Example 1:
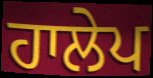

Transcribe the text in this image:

ਹਾਲੇਪ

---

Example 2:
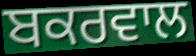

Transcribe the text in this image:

ਬਕਰਵਾਲ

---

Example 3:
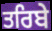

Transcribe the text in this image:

ਤਰਿਬੇ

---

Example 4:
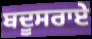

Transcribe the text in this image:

ਬਦੂਸਰਾਏ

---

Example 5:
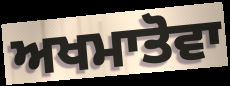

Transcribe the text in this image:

ਅਖਮਾਤੋਵਾ